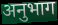
अनुभाग